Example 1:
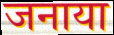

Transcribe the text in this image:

जनाया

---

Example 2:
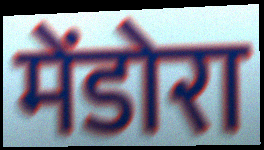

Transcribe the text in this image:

मेंडोरा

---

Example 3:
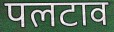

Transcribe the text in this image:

पलटाव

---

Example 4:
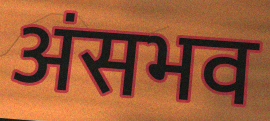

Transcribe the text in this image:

अंसभव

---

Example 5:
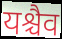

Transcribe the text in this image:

यश्चैव